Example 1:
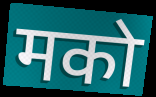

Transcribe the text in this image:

मको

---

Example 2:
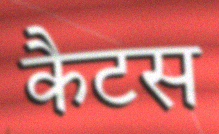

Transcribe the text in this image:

कैटस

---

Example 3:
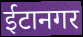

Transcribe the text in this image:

ईटानगर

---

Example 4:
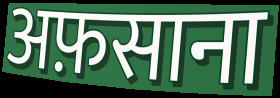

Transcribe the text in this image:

अफ़साना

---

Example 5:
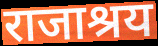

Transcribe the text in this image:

राजाश्रय